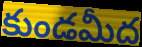
కుండమీద